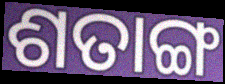
ଶତାଙ୍ଗ